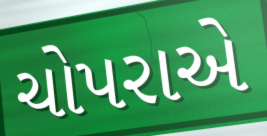
ચોપરાએ